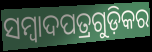
ସମ୍ୱାଦପତ୍ରଗୁଡ଼ିକର